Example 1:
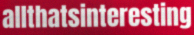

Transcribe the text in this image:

allthatsinteresting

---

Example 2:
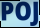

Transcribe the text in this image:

POJ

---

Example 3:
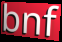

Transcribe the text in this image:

bnf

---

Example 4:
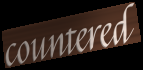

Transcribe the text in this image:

countered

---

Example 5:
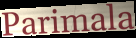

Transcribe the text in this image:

Parimala